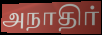
அநாதிர்